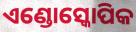
ଏଣ୍ଡୋସ୍କୋପିକ